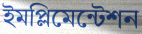
ইমপ্লিমেন্টেশন